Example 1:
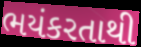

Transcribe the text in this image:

ભયંકરતાથી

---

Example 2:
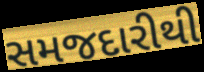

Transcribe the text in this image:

સમજદારીથી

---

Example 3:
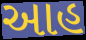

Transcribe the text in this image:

આહ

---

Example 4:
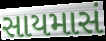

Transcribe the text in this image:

સાયમાસં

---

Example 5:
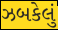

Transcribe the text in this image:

ઝબકેલું